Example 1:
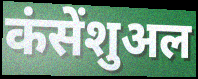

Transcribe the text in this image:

कंसेंशुअल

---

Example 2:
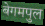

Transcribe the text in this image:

बेगमपुल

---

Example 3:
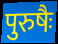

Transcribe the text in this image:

पुरुषैः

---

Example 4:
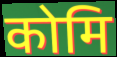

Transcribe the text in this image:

कोमि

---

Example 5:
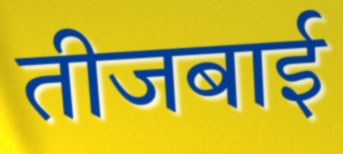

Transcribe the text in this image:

तीजबाई